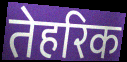
तेहरिक